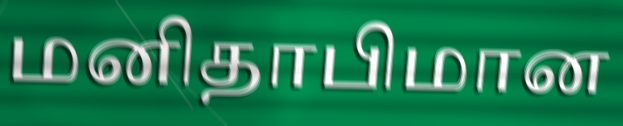
மனிதாபிமான